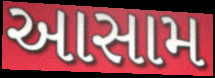
આસામ